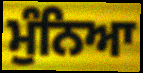
ਮੁੰਨਿਆ